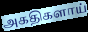
அகதிகளாய்